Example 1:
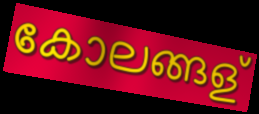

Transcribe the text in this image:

കോലങ്ങള്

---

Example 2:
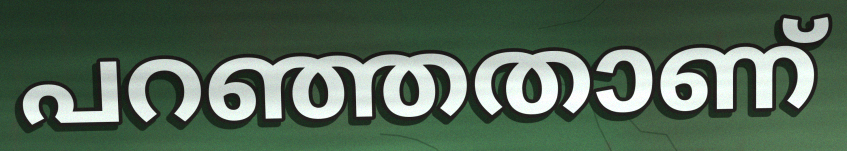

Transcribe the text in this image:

പറഞ്ഞതാണ്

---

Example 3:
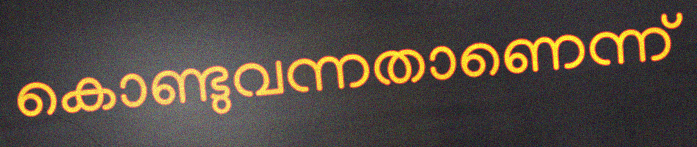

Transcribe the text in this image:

കൊണ്ടുവന്നതാണെന്ന്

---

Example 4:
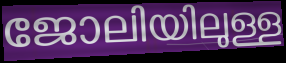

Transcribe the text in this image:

ജോലിയിലുള്ള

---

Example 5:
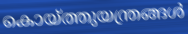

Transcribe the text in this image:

കൊയ്ത്തുയന്ത്രങ്ങൾ